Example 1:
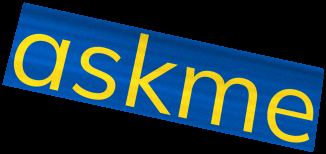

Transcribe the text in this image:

askme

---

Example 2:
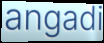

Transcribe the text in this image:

angadi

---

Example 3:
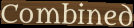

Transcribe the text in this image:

Combined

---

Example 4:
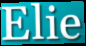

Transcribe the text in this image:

Elie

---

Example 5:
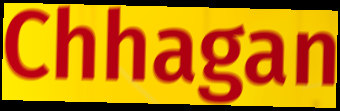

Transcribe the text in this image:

Chhagan